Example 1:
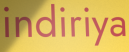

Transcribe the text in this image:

indiriya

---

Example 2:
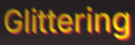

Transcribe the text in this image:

Glittering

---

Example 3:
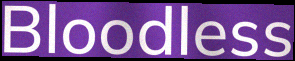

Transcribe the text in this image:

Bloodless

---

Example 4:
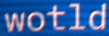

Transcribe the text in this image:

wotld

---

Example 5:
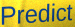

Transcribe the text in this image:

Predict